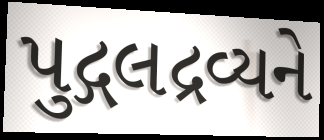
પુદ્ગલદ્રવ્યને